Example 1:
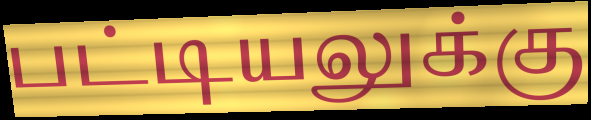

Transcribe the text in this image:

பட்டியலுக்கு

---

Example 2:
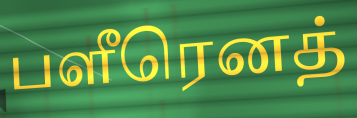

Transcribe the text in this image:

பளீரெனத்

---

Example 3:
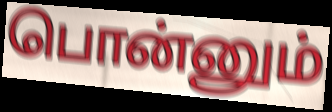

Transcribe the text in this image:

பொன்னும்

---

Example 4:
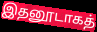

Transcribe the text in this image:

இதனூடாகத்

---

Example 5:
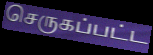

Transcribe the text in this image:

செருகப்பட்ட